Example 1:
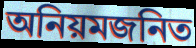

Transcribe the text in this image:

অনিয়মজনিত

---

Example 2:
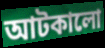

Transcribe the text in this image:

আটকালো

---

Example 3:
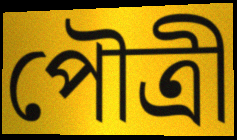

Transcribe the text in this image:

পৌত্রী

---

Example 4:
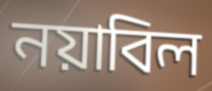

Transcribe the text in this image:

নয়াবিল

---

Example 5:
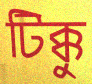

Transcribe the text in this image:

টিক্কু